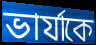
ভার্যাকে